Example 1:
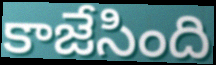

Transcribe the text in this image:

కాజేసింది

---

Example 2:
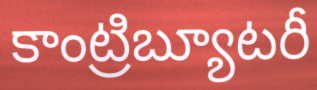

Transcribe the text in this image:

కాంట్రిబ్యూటరీ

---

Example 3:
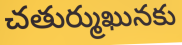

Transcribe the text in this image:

చతుర్ముఖునకు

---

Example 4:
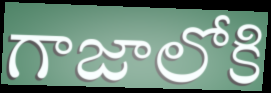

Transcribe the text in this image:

గాజాలోకి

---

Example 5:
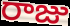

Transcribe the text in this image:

రాజు